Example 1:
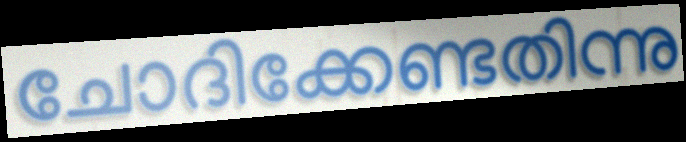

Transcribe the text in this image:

ചോദിക്കേണ്ടതിന്നു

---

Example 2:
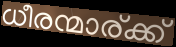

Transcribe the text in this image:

ധീരന്മാര്ക്ക്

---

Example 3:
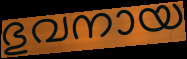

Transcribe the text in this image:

ഭുവനായ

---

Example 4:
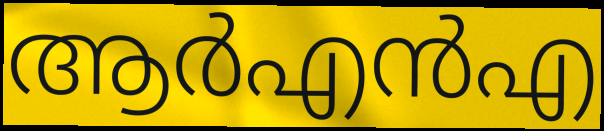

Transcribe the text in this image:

ആർഎൻഎ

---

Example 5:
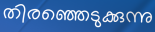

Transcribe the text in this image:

തിരഞ്ഞെടുക്കുന്നു